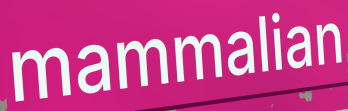
mammalian